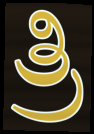
ತ್ರಿ